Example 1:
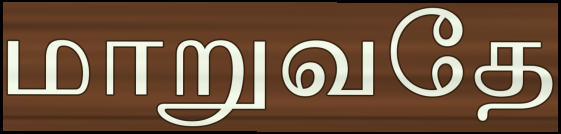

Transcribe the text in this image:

மாறுவதே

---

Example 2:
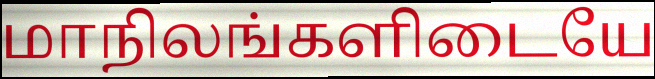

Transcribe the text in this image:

மாநிலங்களிடையே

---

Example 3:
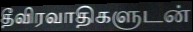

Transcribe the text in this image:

தீவிரவாதிகளுடன்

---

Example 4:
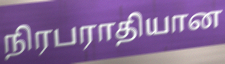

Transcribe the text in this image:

நிரபராதியான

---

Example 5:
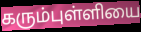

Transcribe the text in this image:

கரும்புள்ளியை